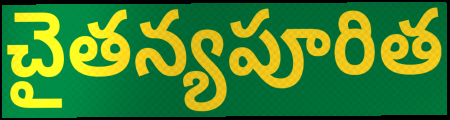
చైతన్యపూరిత